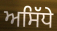
ਅਸਿੱਧੇ